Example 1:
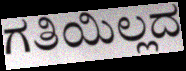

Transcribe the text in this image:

ಗತಿಯಿಲ್ಲದ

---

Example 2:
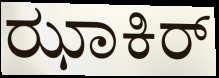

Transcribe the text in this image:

ಝಾಕಿರ್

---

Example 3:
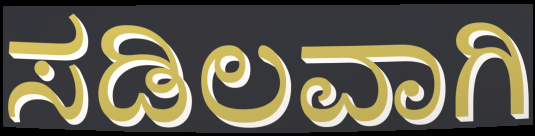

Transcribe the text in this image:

ಸಡಿಲವಾಗಿ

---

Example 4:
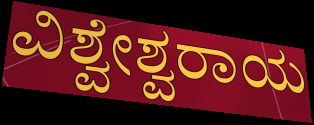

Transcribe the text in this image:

ವಿಶ್ವೇಶ್ವರಾಯ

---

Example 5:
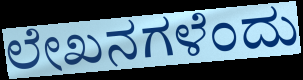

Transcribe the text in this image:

ಲೇಖನಗಳೆಂದು